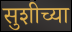
सुशीच्या